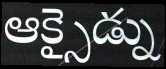
ఆక్సైడ్ను